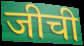
जीची